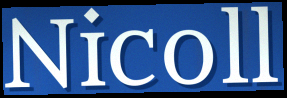
Nicoll